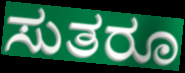
ಸುತರೂ